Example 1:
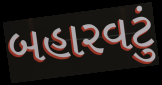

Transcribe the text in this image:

બહારવટું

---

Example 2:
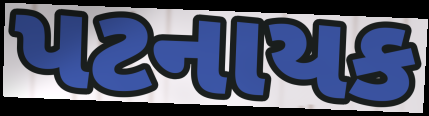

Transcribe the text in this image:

પટનાયક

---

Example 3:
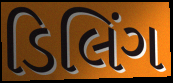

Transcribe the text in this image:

ડિલિંગ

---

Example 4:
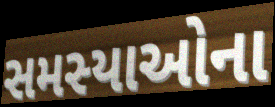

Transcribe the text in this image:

સમસ્યાઓના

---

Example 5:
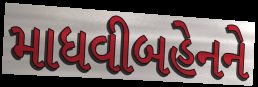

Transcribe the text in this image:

માધવીબહેનને